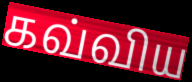
கவ்விய